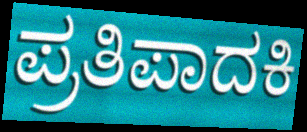
ಪ್ರತಿಪಾದಕಿ